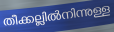
തീക്കല്ലിൽനിന്നുള്ള